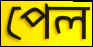
পেল